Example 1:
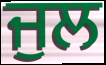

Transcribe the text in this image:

ਜੁਲ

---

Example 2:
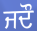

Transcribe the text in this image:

ਜਦੌ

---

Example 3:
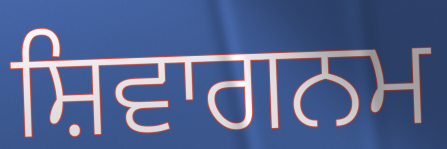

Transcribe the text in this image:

ਸ਼ਿਵਾਗਨਮ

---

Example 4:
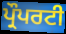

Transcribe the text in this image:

ਪ੍ਰੌਪਰਟੀ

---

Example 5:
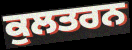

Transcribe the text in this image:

ਕੁਲਤਰਨ